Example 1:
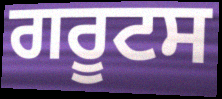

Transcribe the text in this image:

ਗਰੂਟਸ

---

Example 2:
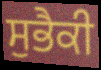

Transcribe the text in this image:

ਸੁਭੈਕੀ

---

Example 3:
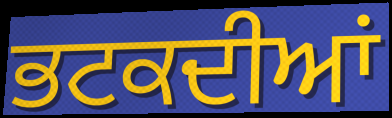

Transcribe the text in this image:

ਭਟਕਦੀਆਂ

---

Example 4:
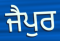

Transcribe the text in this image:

ਜੈਪੁਰ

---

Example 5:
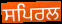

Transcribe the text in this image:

ਸਪਿਰਲ